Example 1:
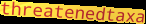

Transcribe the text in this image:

threatenedtaxa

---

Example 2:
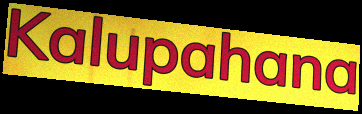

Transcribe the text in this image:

Kalupahana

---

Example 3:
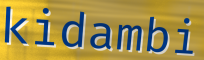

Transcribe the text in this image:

kidambi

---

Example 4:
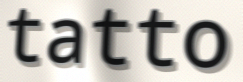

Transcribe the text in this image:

tatto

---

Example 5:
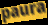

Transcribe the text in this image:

paura